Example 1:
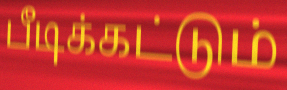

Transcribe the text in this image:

பீடிக்கட்டும்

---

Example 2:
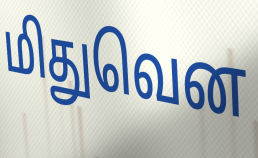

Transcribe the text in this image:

மிதுவென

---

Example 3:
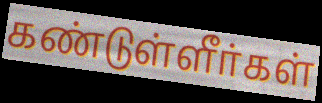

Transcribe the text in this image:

கண்டுள்ளீர்கள்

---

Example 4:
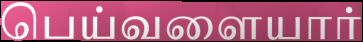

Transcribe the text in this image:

பெய்வளையார்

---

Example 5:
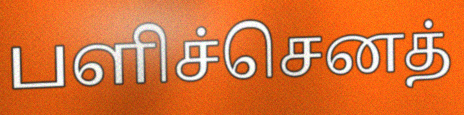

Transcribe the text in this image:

பளிச்செனத்